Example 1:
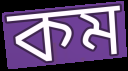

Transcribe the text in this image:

কম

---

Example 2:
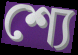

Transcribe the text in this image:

শ্যে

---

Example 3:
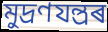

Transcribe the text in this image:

মুদ্ৰণযন্ত্ৰৰ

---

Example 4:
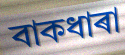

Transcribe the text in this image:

বাকধাৰা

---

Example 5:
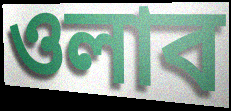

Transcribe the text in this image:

ওলাব